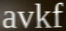
avkf